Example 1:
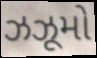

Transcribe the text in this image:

ઝઝૂમો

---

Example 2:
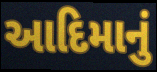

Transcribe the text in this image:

આદિમાનું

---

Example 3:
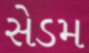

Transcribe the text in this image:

સેડમ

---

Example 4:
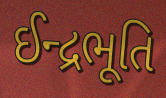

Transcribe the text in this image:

ઈન્દ્રભૂતિ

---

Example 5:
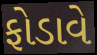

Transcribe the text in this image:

ફોડાવે